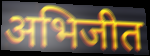
अभिजीत